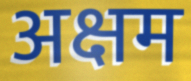
अक्षम